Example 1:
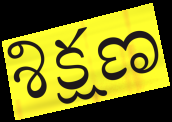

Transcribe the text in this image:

శిక్షణ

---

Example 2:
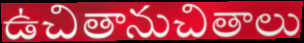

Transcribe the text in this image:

ఉచితానుచితాలు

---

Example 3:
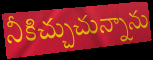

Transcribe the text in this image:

నీకిచ్చుచున్నాను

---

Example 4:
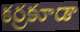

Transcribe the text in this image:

కర్రకూడా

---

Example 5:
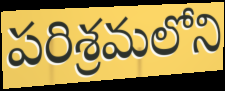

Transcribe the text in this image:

పరిశ్రమలోని